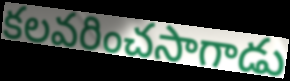
కలవరించసాగాడు